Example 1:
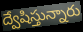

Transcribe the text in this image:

ద్వేషిస్తున్నారు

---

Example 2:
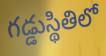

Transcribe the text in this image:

గడ్డుస్థితిలో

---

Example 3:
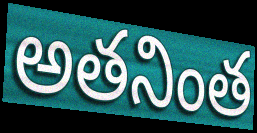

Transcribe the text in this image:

అతనింత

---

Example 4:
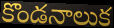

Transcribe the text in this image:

కొండనాలుక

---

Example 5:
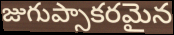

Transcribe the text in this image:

జుగుప్సాకరమైన